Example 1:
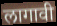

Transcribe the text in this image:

लागावी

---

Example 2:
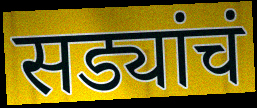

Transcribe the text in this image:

सड्यांचं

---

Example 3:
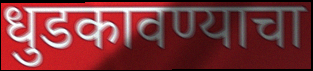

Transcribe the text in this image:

धुडकावण्याचा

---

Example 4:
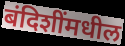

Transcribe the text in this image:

बंदिशींमधील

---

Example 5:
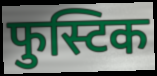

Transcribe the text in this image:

फुस्टिक